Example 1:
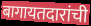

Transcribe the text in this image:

बागायतदारांची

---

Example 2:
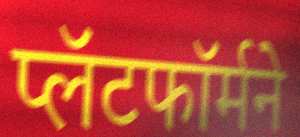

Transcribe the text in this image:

प्लॅटफॉर्मने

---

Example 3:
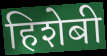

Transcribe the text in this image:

हिशेबी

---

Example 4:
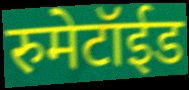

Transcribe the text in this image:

रुमेटॉईड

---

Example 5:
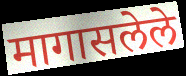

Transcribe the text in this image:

मागासलेले